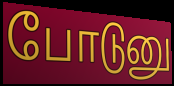
போடுனு